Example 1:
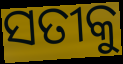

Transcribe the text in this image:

ସତୀକୁ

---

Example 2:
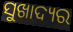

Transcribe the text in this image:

ସୁଖାଦ୍ୟର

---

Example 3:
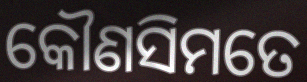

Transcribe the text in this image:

କୌଣସିମତେ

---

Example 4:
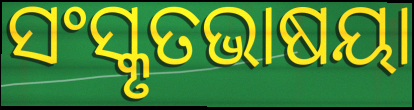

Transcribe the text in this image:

ସଂସ୍କୃତଭାଷୟା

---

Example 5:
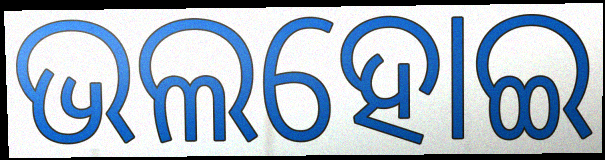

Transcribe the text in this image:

ଭଲହୋଇ